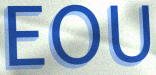
EOU